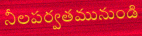
నీలపర్వతమునుండి